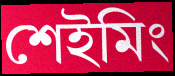
শেইমিং